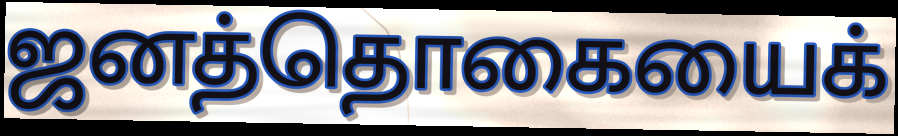
ஜனத்தொகையைக்